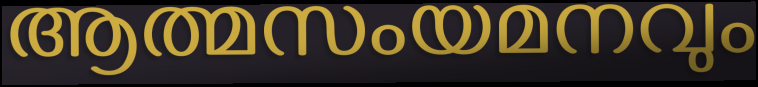
ആത്മസംയമനവും